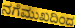
ನಗೆಮುಖದಿಂದ